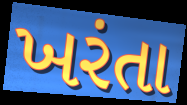
ખરંતા